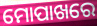
ମୋପାଖରେ